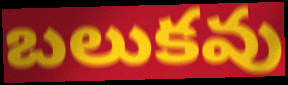
బలుకవు